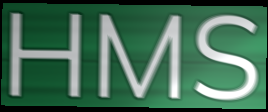
HMS